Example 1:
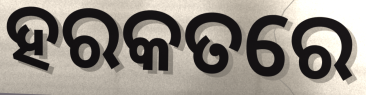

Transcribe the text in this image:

ହରକତରେ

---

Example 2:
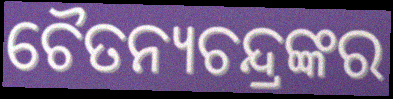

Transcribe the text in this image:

ଚୈତନ୍ୟଚନ୍ଦ୍ରଙ୍କର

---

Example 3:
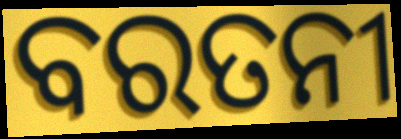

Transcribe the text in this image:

ବରତନୀ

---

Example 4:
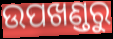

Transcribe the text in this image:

ଉପଖଣ୍ଡରୁ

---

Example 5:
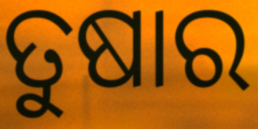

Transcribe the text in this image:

ତୁଷାର